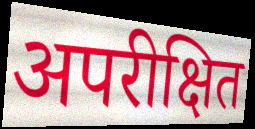
अपरीक्षित